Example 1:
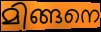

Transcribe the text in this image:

മിങ്ങനെ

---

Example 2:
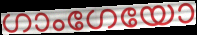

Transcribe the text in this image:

ഗാംഗേയോ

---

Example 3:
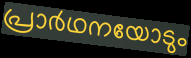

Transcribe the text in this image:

പ്രാർഥനയോടും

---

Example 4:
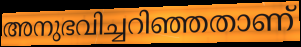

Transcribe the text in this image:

അനുഭവിച്ചറിഞ്ഞതാണ്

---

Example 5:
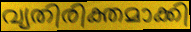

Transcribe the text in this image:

വ്യതിരിക്തമാക്കി